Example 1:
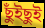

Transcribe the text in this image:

ছুঁইছুই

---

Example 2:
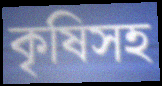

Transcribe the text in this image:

কৃষিসহ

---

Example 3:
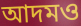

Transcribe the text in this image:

আদমও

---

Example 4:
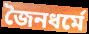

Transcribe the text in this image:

জৈনধর্মে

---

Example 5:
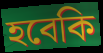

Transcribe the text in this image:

হবেকি